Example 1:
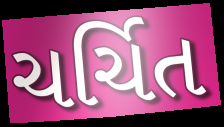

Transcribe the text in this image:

ચર્ચિત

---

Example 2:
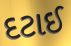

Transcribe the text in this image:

દટાઈ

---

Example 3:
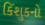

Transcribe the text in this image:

કિંશુકનો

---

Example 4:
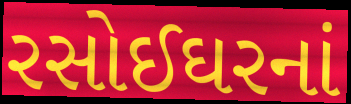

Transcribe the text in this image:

રસોઈઘરનાં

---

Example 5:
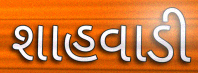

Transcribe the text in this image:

શાહવાડી